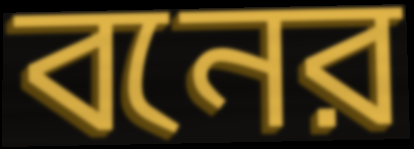
বনের